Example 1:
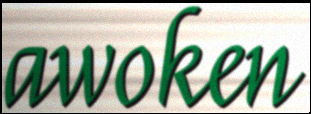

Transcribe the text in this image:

awoken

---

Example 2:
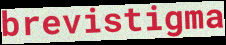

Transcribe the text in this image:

brevistigma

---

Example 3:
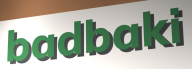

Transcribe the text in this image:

badbaki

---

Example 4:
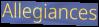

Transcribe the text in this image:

Allegiances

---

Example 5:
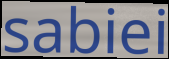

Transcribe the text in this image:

sabiei